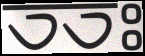
ততঃ